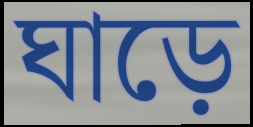
ঘাড়ে